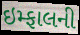
ઇમ્ફાલની